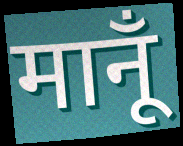
मानूँ